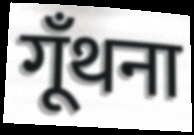
गूँथना